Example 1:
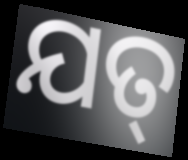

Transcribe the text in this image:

ଯତ୍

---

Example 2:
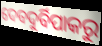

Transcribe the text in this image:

ଦେବଦୁର୍ବିପାକରୁ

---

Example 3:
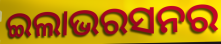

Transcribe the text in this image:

ଇଲାଭରସନର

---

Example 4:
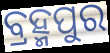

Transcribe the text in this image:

ବ୍ରହ୍ମପୁର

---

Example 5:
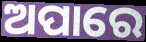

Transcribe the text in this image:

ଅପାରେ